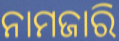
ନାମଜାରି